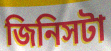
জিনিসটা